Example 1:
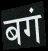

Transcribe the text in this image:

बगं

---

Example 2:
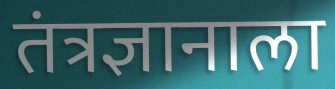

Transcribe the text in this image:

तंत्रज्ञानाला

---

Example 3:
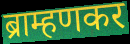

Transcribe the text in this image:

ब्राम्हणकर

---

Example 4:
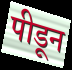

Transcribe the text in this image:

पीडून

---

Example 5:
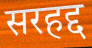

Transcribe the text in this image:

सरहद्द